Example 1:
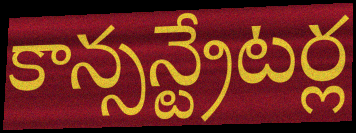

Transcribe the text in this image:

కాన్సన్ట్రేటర్ల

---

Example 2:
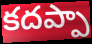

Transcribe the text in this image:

కదప్పా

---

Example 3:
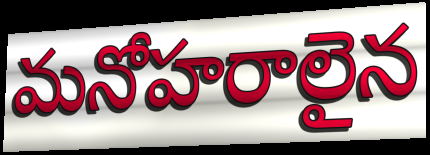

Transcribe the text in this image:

మనోహరాలైన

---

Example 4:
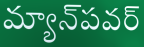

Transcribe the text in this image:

మ్యాన్‌పవర్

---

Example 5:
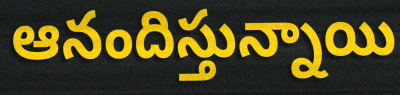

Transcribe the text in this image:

ఆనందిస్తున్నాయి